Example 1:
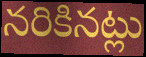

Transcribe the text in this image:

నరికినట్లు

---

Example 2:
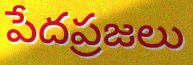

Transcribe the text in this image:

పేదప్రజలు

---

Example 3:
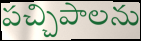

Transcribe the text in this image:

పచ్చిపాలను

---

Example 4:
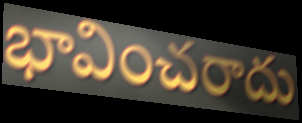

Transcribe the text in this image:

భావించరాదు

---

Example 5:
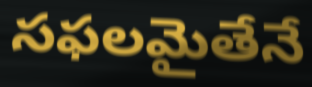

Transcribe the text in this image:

సఫలమైతేనే